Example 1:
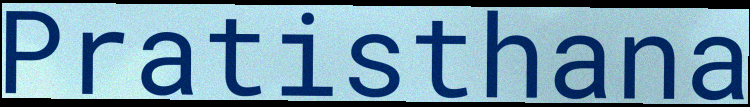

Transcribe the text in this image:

Pratisthana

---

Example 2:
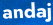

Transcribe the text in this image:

andaj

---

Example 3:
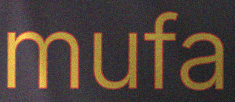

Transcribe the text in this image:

mufa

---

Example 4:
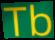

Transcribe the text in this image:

Tb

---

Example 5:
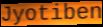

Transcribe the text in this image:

Jyotiben